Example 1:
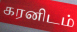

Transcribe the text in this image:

கரனிடம்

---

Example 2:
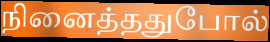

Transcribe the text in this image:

நினைத்ததுபோல்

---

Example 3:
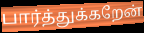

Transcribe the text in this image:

பார்த்துக்கறேன்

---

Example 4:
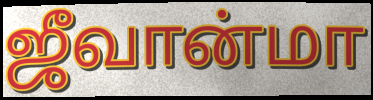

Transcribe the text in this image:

ஜீவான்மா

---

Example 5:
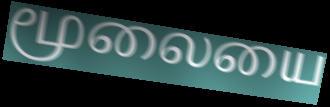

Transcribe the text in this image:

மூலையை